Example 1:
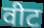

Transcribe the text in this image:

वीट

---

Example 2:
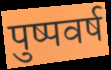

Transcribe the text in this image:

पुष्पवर्ष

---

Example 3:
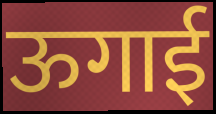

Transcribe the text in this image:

ऊगाई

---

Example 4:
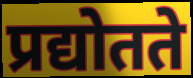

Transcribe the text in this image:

प्रद्योतते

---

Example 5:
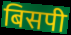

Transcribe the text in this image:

बिसपी